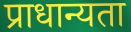
प्राधान्यता